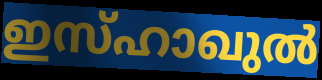
ഇസ്ഹാഖുൽ